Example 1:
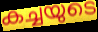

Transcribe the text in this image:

കച്ചയുടെ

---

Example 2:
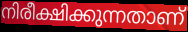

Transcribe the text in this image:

നിരീക്ഷിക്കുന്നതാണ്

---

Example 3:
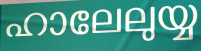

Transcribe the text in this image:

ഹാലേലുയ്യ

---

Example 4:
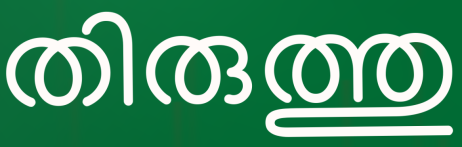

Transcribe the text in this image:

തിരുത്തു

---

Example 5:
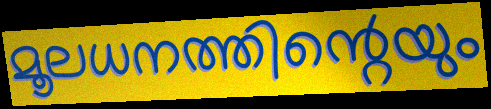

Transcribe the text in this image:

മൂലധനത്തിന്റെയും